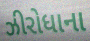
ઝીરોધાના